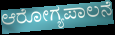
ಆರೋಗ್ಯಪಾಲನೆ